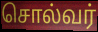
சொல்வர்